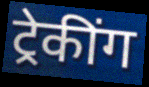
ट्रेकींग